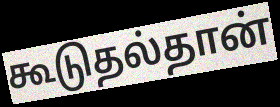
கூடுதல்தான்